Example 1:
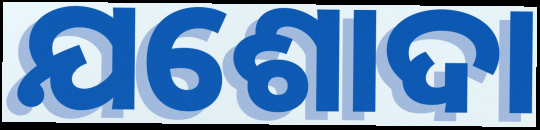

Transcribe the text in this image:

ଯଶୋଦା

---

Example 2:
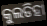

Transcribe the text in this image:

କୁଲଡିହା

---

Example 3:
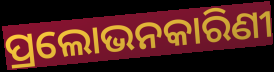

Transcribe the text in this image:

ପ୍ରଲୋଭନକାରିଣୀ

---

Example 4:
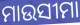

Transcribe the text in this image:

ମାଉସୀମା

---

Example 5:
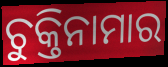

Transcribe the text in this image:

ଚୁକ୍ତିନାମାର